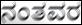
ನಂತವರ